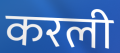
करली